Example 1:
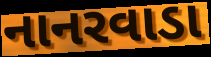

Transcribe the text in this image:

નાનરવાડા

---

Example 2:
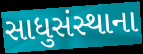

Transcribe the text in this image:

સાધુસંસ્થાના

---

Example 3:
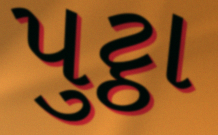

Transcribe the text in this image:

પુટ્ઠા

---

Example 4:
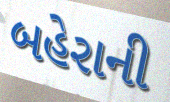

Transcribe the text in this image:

બહેરાની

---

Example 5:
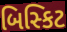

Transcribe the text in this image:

બિસ્કિટ